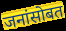
जनांसोबत